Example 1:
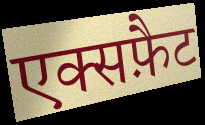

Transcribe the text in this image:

एक्सफ़ैट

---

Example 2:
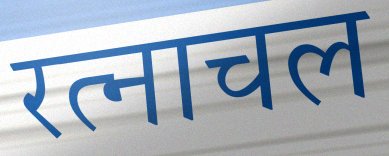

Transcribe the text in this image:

रत्नाचल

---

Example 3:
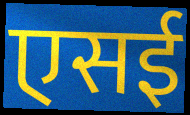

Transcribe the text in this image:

एसई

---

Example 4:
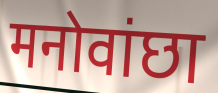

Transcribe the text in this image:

मनोवांछा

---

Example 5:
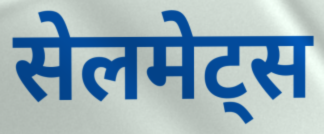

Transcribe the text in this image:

सेलमेट्स